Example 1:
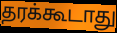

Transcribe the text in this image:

தரக்கூடாது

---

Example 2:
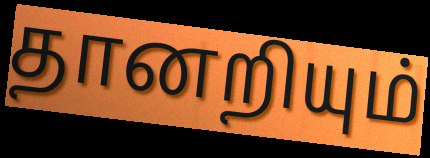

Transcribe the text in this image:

தானறியும்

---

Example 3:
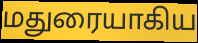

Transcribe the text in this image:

மதுரையாகிய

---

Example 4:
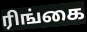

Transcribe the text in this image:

ரிங்கை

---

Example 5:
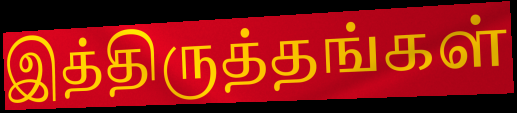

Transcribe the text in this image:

இத்திருத்தங்கள்